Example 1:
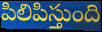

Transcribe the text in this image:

పిలిపిస్తుంది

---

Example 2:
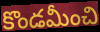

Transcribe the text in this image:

కొండమీంచి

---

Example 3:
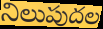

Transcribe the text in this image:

నిలుపుదల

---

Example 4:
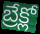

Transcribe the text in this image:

బ్రేక్లో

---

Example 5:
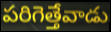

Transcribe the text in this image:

పరిగెత్తేవాడు